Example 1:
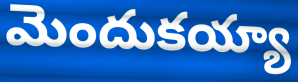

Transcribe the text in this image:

మెందుకయ్యా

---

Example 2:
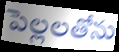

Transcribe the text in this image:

పెల్లలతోను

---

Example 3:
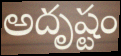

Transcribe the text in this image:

అదృష్టం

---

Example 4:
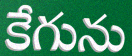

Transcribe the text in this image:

కేగును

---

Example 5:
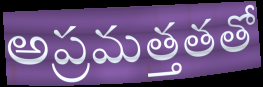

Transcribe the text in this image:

అప్రమత్తతతో